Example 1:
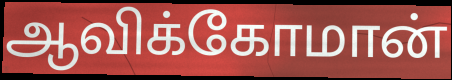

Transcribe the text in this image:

ஆவிக்கோமான்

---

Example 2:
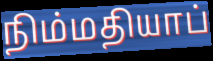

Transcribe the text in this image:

நிம்மதியாப்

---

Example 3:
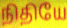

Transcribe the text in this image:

நிதியே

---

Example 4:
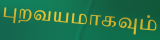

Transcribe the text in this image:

புறவயமாகவும்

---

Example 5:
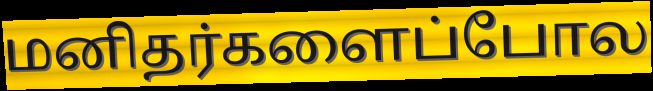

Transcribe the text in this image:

மனிதர்களைப்போல